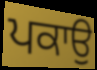
ਪਕਾਉ